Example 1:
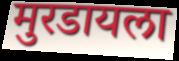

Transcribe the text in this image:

मुरडायला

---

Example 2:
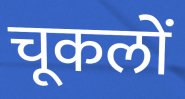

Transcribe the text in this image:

चूकलों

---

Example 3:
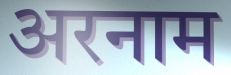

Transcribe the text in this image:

अरनाम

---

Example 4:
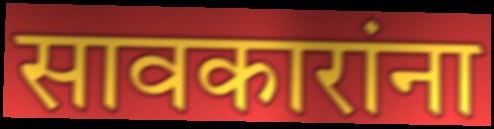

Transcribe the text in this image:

सावकारांना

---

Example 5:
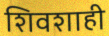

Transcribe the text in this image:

शिवशाही